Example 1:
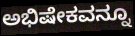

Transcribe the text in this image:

ಅಭಿಷೇಕವನ್ನೂ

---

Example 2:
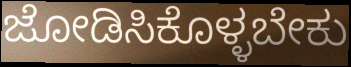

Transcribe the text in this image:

ಜೋಡಿಸಿಕೊಳ್ಳಬೇಕು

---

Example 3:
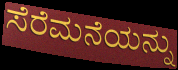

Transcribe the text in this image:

ಸೆರೆಮನೆಯನ್ನು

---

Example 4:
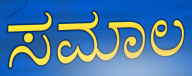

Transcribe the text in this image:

ಸಮಾಲ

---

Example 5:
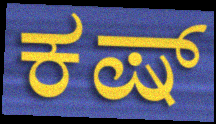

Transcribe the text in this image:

ಕಷ್